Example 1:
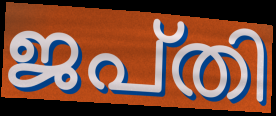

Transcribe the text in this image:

ജപ്‌തി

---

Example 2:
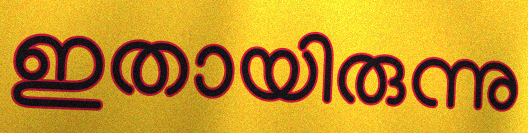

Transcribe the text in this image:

ഇതായിരുന്നു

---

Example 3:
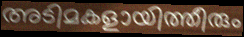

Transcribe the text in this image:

അടിമകളായിത്തീരും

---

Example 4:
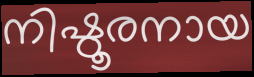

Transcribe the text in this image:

നിഷ്ഠൂരനായ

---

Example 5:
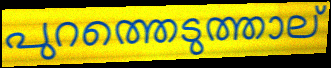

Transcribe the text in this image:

പുറത്തെടുത്താല്